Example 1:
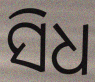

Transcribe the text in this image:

ସିଧ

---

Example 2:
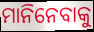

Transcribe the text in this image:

ମାନିନେବାକୁ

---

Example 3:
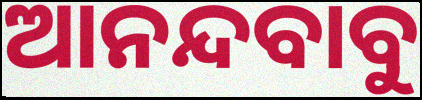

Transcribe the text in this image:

ଆନନ୍ଦବାବୁ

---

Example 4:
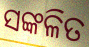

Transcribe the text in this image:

ସଙ୍କଳିତ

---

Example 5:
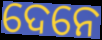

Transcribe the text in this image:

ଦେନେ